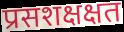
प्रसशक्षक्षत